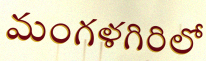
మంగళగిరిలో